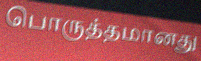
பொருத்தமானது